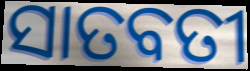
ସାତବତୀ